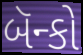
બૅન્કો